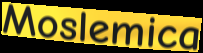
Moslemica